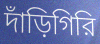
দাঁড়িগিরি